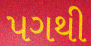
પગથી